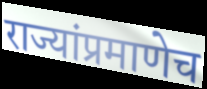
राज्यांप्रमाणेच